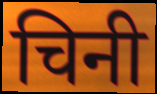
चिनी